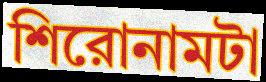
শিরোনামটা